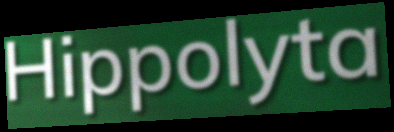
Hippolyta